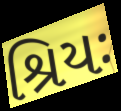
શ્રિયઃ